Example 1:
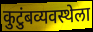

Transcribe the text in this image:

कुटुंबव्यवस्थेला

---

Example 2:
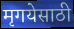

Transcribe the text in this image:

मृगयेसाठी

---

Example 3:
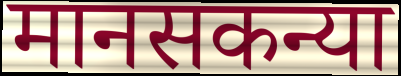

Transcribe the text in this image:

मानसकन्या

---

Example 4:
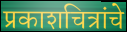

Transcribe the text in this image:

प्रकाशचित्रांचे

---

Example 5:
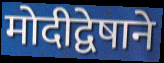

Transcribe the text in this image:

मोदीद्वेषाने